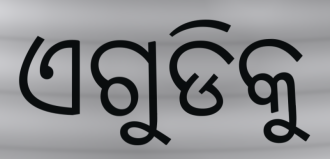
ଏଗୁଡିକୁ